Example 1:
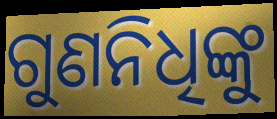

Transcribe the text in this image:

ଗୁଣନିଧିଙ୍କୁ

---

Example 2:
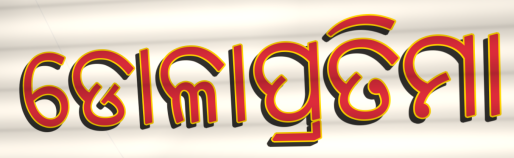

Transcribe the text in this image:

ଡୋଳାପ୍ରତିମା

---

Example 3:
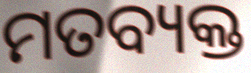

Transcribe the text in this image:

ମତବ୍ୟକ୍ତ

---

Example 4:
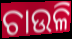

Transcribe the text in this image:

ଚାଉଳି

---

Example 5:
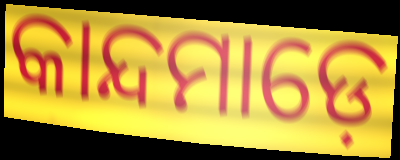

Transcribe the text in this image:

କାନ୍ଦମାଡ଼େ